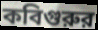
কবিগুরুর